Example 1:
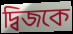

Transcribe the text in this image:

দ্বিজকে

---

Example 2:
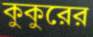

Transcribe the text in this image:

কুকুরের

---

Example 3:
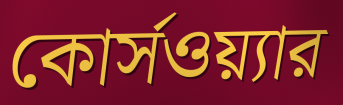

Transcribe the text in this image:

কোর্সওয়্যার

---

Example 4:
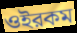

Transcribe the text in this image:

ওইরকম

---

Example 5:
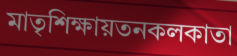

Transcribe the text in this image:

মাতৃশিক্ষায়তনকলকাতা